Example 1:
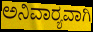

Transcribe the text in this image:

ಅನಿವಾರ‍್ಯವಾಗಿ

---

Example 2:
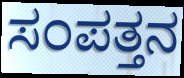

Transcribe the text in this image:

ಸಂಪತ್ತನ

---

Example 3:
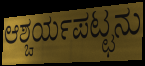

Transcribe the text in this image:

ಆಶ್ಚರ್ಯಪಟ್ಟನು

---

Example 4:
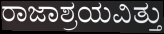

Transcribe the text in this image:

ರಾಜಾಶ್ರಯವಿತ್ತು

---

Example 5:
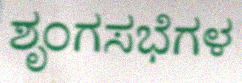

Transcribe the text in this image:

ಶೃಂಗಸಭೆಗಳ